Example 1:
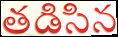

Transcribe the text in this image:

తడిసిన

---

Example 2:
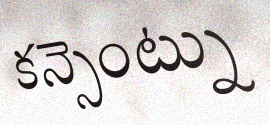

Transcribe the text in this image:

కన్సెంట్ను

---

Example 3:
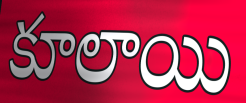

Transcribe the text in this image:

కూలాయి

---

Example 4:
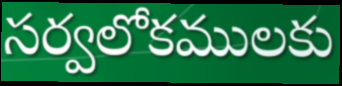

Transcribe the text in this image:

సర్వలోకములకు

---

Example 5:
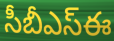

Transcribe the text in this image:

సీబీఎస్ఈ